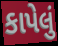
કાપેલું